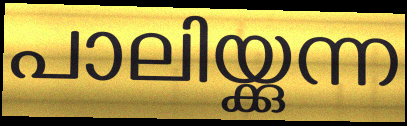
പാലിയ്ക്കുന്ന